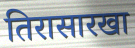
तिरासारखा